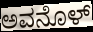
ಅವನೊಳ್